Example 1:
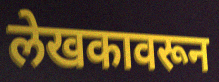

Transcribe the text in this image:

लेखकावरून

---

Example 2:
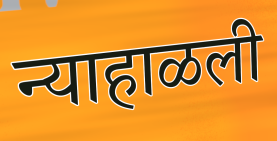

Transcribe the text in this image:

न्याहाळली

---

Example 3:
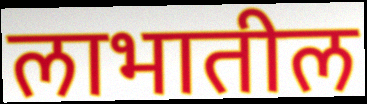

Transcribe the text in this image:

लाभातील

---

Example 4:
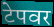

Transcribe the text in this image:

टेपवर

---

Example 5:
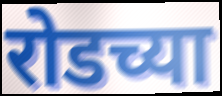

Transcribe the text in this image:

रोडच्या